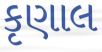
કૃણાલ